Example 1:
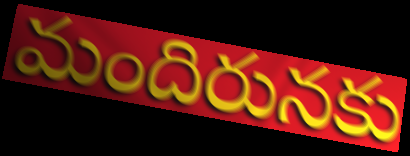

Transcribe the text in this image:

మందిరునకు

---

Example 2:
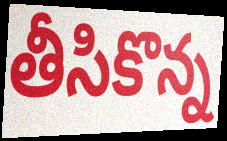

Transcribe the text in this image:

తీసికొన్న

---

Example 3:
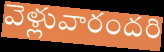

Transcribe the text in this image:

వెళ్లువారందరి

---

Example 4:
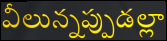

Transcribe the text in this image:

వీలున్నప్పుడల్లా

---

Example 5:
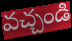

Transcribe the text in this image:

వచ్చండి